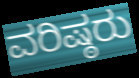
ವರಿಷ್ಠರು